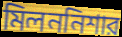
মিলননিশার